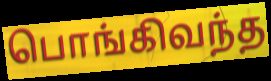
பொங்கிவந்த